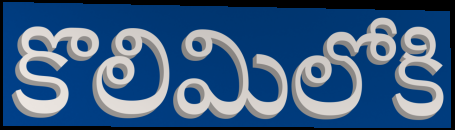
కొలిమిలోకి